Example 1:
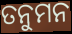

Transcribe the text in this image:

ତନୁମନ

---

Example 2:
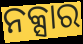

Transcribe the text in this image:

ନକ୍ସାର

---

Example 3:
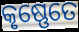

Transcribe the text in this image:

କୃଷ୍ଣେତେ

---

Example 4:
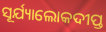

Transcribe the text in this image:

ସୂର୍ଯ୍ୟାଲୋକଦୀପ୍ତ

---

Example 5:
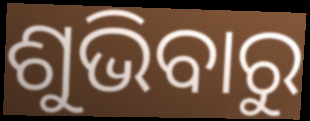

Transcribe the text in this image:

ଶୁଭିବାରୁ